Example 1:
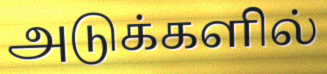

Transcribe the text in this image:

அடுக்களில்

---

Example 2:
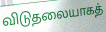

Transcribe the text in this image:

விடுதலையாகத்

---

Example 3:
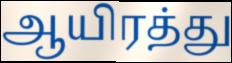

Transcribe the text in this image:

ஆயிரத்து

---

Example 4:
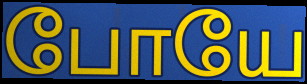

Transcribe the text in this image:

போயே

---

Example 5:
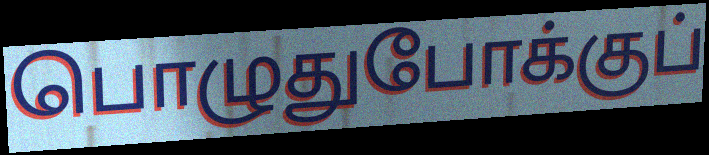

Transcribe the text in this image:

பொழுதுபோக்குப்